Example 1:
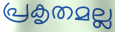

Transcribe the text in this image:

പ്രകൃതമല്ല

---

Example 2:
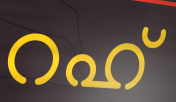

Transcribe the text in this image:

റഹ്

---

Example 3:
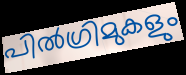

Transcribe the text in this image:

പിൽഗ്രിമുകളും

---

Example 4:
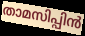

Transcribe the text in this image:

താമസിപ്പിൻ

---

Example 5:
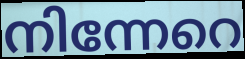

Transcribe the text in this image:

നിന്നേറെ